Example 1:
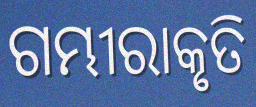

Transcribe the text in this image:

ଗମ୍ଭୀରାକୃତି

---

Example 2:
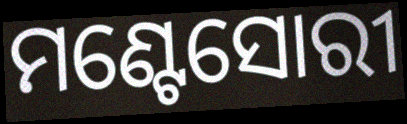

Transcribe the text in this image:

ମଣ୍ଟେସୋରୀ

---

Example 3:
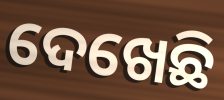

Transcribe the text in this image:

ଦେଖେଛି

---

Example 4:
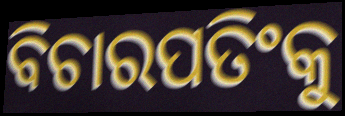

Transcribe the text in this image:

ବିଚାରପତିଂକୁ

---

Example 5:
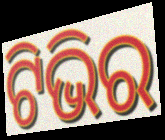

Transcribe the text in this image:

ଟିଭିର